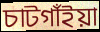
চাটগাঁইয়া